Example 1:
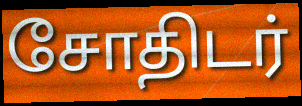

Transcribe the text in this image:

சோதிடர்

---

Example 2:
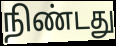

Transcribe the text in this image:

நிண்டது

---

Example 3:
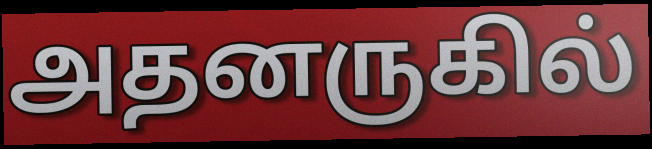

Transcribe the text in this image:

அதனருகில்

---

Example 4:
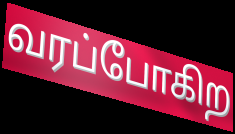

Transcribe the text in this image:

வரப்போகிற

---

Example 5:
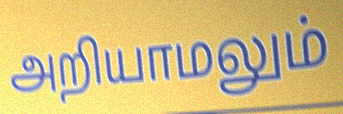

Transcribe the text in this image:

அறியாமலும்